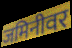
जमिनीवर